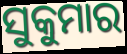
ସୁକୁମାର